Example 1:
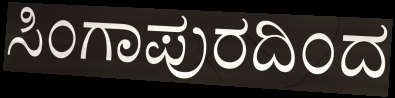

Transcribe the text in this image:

ಸಿಂಗಾಪುರದಿಂದ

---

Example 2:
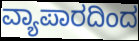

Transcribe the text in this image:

ವ್ಯಾಪಾರದಿಂದ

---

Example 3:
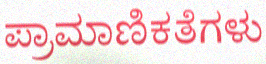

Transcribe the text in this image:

ಪ್ರಾಮಾಣಿಕತೆಗಳು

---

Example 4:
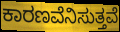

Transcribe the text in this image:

ಕಾರಣವೆನಿಸುತ್ತವೆ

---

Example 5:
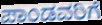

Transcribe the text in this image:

ಪಾಂಡವರಿಗೆ